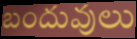
బందువులు